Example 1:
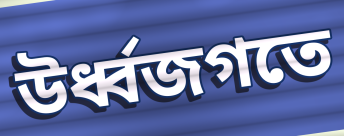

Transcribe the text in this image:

উর্ধ্বজগতে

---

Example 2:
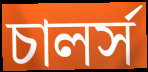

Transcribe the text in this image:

চালর্স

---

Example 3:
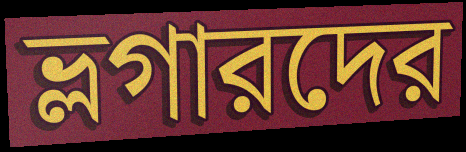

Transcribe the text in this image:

ভ্লগারদের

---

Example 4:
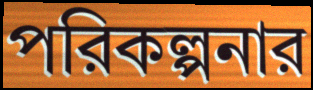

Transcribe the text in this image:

পরিকল্পনার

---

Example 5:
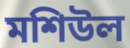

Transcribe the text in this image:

মশিউল